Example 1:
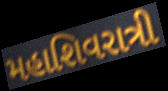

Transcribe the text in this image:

મહાશિવરાત્રી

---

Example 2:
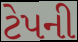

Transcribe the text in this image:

ટેપની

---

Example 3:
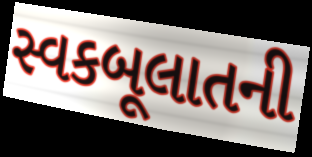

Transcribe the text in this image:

સ્વકબૂલાતની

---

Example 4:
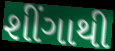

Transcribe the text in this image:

શીંગાથી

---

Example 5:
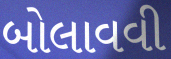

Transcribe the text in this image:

બોલાવવી